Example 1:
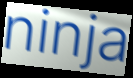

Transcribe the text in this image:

ninja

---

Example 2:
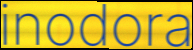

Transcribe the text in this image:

inodora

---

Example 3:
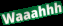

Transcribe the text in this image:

Waaahhh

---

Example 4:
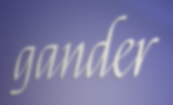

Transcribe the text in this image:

gander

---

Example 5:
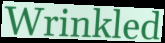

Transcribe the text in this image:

Wrinkled